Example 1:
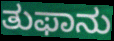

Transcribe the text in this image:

ತುಫಾನು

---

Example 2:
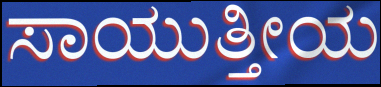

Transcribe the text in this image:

ಸಾಯುತ್ತೀಯ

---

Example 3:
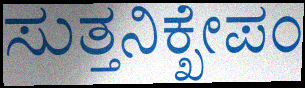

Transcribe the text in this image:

ಸುತ್ತನಿಕ್ಖೇಪಂ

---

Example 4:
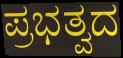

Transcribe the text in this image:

ಪ್ರಭತ್ವದ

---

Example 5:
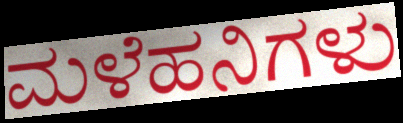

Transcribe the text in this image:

ಮಳೆಹನಿಗಳು